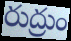
రుద్రుం